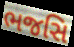
ભજસિ